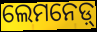
ଲେମନେଡ଼୍